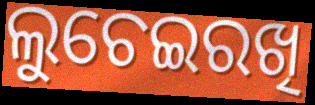
ଲୁଚେଇରଖି